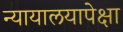
न्यायालयापेक्षा